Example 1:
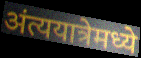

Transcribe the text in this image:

अंत्ययात्रेमध्ये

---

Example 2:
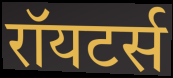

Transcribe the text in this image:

रॉयटर्स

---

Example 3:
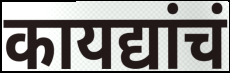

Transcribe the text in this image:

कायद्यांचं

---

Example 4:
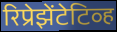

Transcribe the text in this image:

रिप्रेझेंटेटिव्ह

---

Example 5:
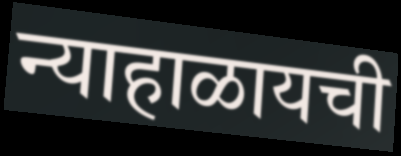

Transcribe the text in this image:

न्याहाळायची